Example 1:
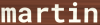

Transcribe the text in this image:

martin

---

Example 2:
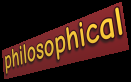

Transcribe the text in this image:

philosophical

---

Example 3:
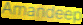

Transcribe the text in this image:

Amandeep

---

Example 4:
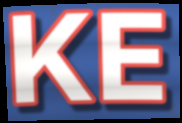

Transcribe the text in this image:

KE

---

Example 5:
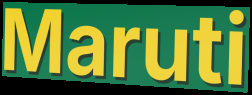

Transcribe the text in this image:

Maruti